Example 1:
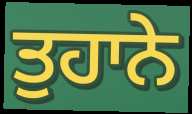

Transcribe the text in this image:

ਤੁਹਾਨੇ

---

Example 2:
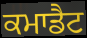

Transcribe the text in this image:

ਕਮਾਡੈਟ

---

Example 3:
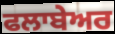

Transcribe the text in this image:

ਫਲਾਬੇਅਰ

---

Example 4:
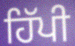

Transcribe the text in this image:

ਹਿੱਪੀ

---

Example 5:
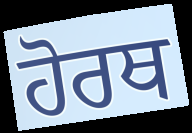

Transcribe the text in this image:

ਹੋਰਥ